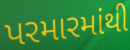
પરમારમાંથી